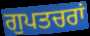
ਗੁਪਤਚਰਾਂ